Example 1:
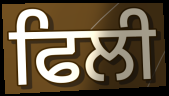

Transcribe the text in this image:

ਫਿਲੀ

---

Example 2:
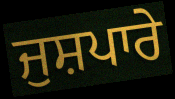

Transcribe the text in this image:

ਜੁਸ਼ਪਾਰੇ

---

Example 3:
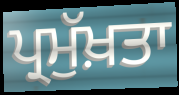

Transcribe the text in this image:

ਪ੍ਰਮੁੱਖ਼ਤਾ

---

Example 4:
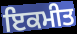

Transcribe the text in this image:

ਇਕਮੀਤ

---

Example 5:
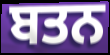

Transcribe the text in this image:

ਬਤਨ